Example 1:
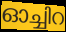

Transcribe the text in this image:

ഓച്ചിറ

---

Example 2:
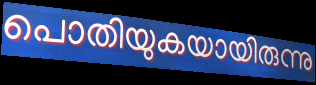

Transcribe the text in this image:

പൊതിയുകയായിരുന്നു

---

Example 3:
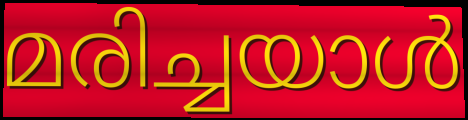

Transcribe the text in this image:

മരിച്ചയാൾ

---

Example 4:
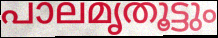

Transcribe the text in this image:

പാലമൃതൂട്ടും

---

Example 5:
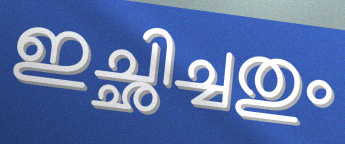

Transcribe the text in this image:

ഇച്ഛിച്ചതും